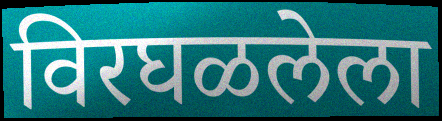
विरघळलेला